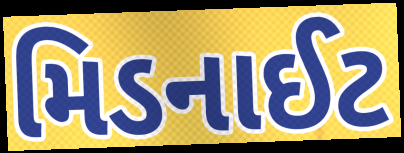
મિડનાઈટ